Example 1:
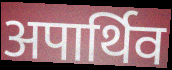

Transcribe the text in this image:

अपार्थिव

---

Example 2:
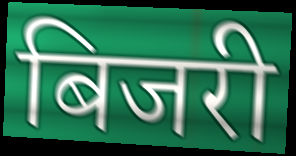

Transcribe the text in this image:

बिजरी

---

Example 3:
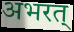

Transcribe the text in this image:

अभरत्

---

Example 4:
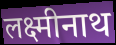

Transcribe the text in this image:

लक्ष्मीनाथ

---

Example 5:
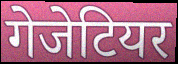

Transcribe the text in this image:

गेजेटियर